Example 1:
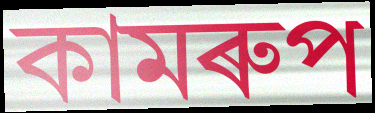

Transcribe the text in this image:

কামৰুপ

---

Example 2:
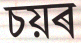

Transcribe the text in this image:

চয়ৰ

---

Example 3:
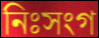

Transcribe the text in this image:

নিঃসংগ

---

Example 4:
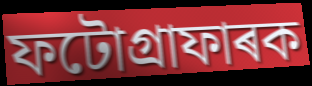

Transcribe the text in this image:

ফটোগ্ৰাফাৰক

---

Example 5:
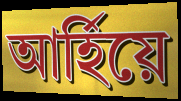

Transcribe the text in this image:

আৰ্হিয়ে